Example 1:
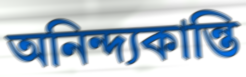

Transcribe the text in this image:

অনিন্দ্যকান্তি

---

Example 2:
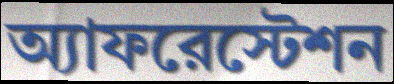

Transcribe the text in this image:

অ্যাফরেস্টেশন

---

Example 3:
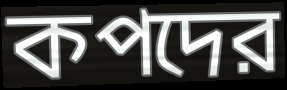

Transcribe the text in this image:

কপদের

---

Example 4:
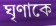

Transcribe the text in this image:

ঘৃণাকে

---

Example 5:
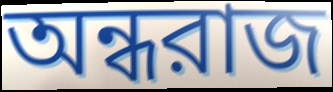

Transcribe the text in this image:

অন্ধরাজ